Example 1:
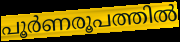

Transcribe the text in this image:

പൂർണരൂപത്തിൽ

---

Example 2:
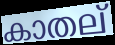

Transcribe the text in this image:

കാതല്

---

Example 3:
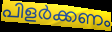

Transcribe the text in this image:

പിളർക്കണം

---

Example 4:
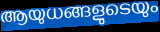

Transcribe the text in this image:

ആയുധങ്ങളുടെയും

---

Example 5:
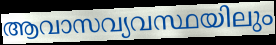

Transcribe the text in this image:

ആവാസവ്യവസ്ഥയിലും